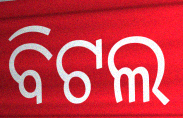
ବିଟଲ